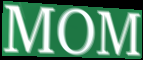
MOM